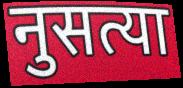
नुसत्या